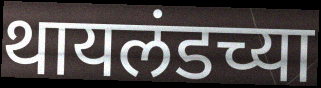
थायलंडच्या